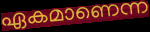
ഏകമാണെന്ന